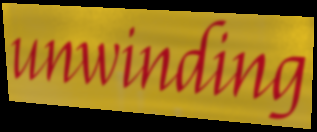
unwinding